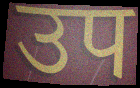
उप